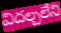
విదల్చలేని